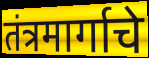
तंत्रमार्गाचे